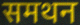
समथन